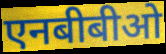
एनबीबीओ